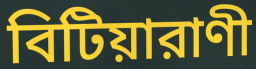
বিটিয়ারাণী